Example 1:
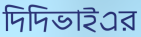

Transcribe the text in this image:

দিদিভাইএর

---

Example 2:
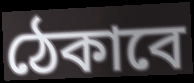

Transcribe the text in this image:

ঠেকাবে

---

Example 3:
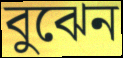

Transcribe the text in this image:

বুঝেন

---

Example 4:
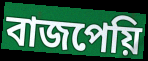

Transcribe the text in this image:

বাজপেয়ি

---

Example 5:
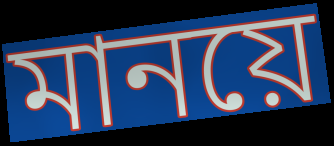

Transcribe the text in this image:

মানয়ে